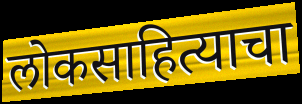
लोकसाहित्याचा